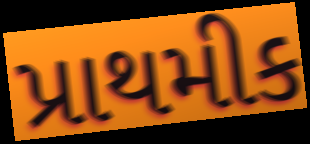
પ્રાથમીક